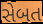
સેબત